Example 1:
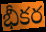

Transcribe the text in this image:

భీకర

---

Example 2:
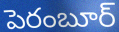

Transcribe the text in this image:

పెరంబూర్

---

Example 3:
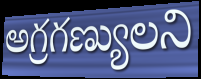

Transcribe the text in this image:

అగ్రగణ్యులని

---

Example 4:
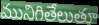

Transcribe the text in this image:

మునిగితేలుతూ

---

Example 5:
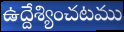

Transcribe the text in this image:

ఉద్దేశ్యించటము